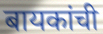
बायकांची